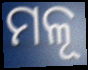
ମଳୂ